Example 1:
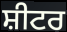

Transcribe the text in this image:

ਸ਼ੀਟਰ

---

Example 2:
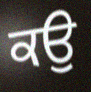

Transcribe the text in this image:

ਕਉ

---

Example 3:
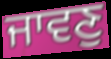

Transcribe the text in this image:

ਜਾਵਣੁ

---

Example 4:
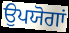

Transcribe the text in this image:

ਉਪਯੋਗਾਂ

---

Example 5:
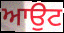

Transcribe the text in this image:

ਆਉਟ